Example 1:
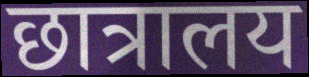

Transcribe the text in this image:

छात्रालय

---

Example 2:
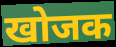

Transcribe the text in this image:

खोजक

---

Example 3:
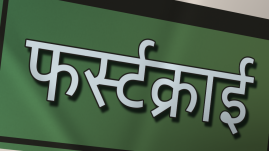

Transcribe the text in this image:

फर्स्टक्राई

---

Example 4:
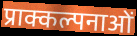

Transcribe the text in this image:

प्राक्कल्पनाओं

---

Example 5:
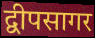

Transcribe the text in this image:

द्वीपसागर